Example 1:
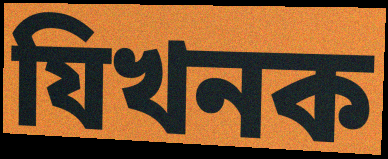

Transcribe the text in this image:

যিখনক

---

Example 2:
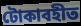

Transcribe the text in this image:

টোকাবহীত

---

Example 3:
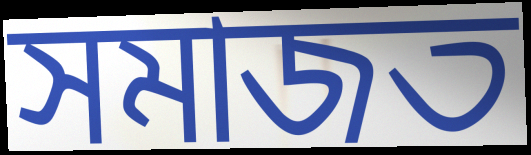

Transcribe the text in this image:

সমাজত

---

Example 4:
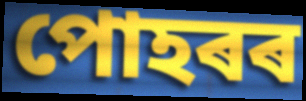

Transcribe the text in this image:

পোহৰৰ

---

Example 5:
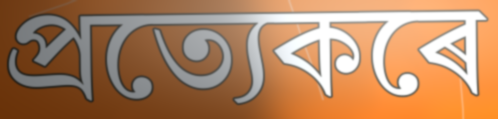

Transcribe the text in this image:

প্ৰত্যেকৰে